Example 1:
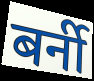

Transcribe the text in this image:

बर्नी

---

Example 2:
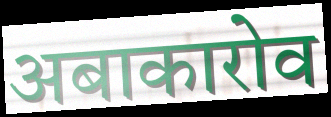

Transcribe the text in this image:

अबाकारोव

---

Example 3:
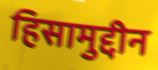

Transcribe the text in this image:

हिसामुद्दीन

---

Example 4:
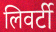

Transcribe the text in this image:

लिवर्टी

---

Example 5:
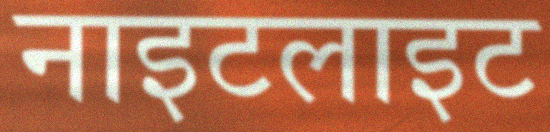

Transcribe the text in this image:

नाइटलाइट